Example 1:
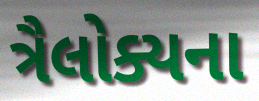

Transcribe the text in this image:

ત્રૈલોક્યના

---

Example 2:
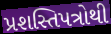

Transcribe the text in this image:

પ્રશસ્તિપત્રોથી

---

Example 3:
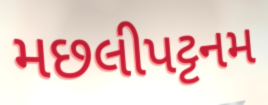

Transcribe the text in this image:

મછલીપટ્ટનમ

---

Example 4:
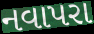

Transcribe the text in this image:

નવાપરા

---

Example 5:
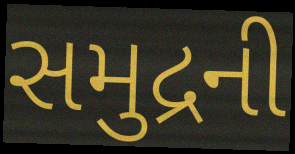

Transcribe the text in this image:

સમુદ્રની